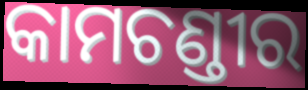
କାମଚଣ୍ଡୀର